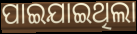
ପାଇଯାଇଥିଲା